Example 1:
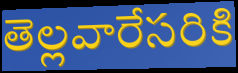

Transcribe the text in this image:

తెల్లవారేసరికి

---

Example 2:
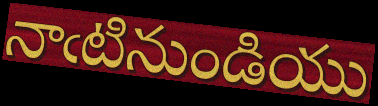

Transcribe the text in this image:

నాఁటినుండియు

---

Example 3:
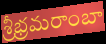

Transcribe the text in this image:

శ్రీభ్రమరాంబా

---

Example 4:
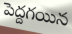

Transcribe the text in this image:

పెద్దగయిన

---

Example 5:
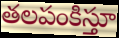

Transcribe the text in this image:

తలపంకిస్తూ